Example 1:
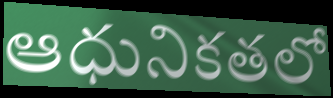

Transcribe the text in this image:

ఆధునికతలో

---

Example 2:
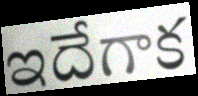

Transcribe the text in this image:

ఇదేగాక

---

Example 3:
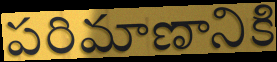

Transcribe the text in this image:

పరిమాణానికి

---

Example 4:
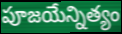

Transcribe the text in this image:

పూజయేన్నిత్యం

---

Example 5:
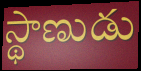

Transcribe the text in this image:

స్థాణుడు